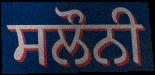
ਸਲੌਨੀ